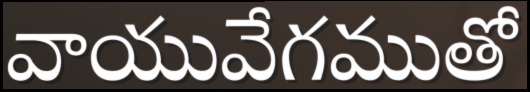
వాయువేగముతో